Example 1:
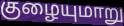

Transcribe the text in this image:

குழையுமாறு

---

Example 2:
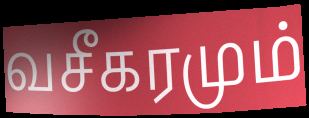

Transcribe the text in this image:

வசீகரமும்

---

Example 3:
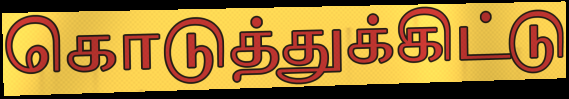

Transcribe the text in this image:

கொடுத்துக்கிட்டு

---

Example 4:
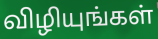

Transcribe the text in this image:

விழியுங்கள்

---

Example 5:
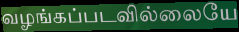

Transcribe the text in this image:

வழங்கப்படவில்லையே